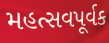
મહત્સવપૂર્વક